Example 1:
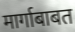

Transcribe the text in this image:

मार्गाबाबत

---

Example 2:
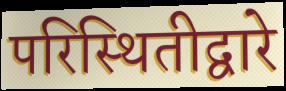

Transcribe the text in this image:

परिस्थितीद्वारे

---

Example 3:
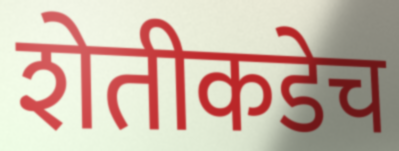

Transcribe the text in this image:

शेतीकडेच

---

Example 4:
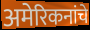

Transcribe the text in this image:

अमेरिकनांचे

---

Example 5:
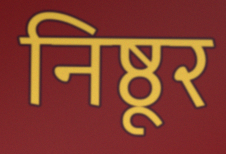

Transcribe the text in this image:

निष्ठूर